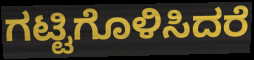
ಗಟ್ಟಿಗೊಳಿಸಿದರೆ